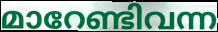
മാറേണ്ടിവന്ന